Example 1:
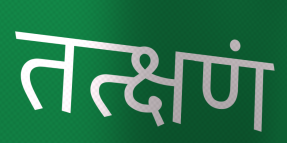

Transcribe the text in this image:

तत्क्षणं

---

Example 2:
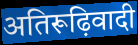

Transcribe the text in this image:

अतिरूढ़िवादी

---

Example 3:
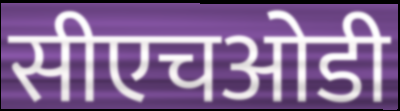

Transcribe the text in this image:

सीएचओडी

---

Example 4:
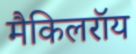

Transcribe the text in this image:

मैकिलरॉय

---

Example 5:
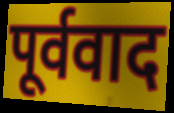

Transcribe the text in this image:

पूर्ववाद